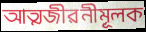
আত্মজীৱনীমূলক